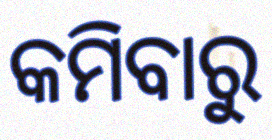
କମିବାରୁ